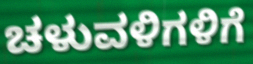
ಚಳುವಳಿಗಳಿಗೆ